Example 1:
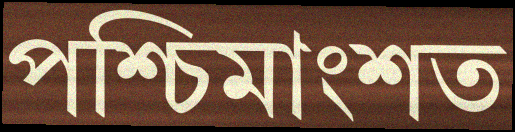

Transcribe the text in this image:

পশ্চিমাংশত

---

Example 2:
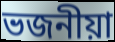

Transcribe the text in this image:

ভজনীয়া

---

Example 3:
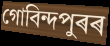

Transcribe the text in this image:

গোবিন্দপুৰৰ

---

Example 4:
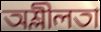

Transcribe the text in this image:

অশ্লীলতা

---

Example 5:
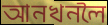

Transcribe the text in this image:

আনখনলৈ